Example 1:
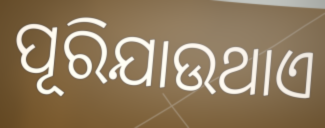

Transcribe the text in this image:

ପୂରିଯାଉଥାଏ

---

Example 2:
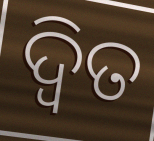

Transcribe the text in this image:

ଦ୍ୱିତ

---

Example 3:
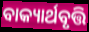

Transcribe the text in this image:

ବାକ୍ୟାର୍ଥବୃତ୍ତି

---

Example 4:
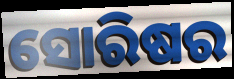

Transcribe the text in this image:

ସୋରିଷର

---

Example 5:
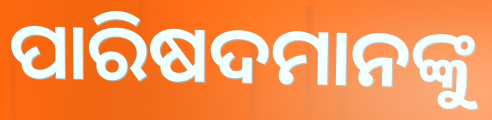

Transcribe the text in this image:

ପାରିଷଦମାନଙ୍କୁ